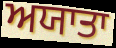
ਅਯਾਤਾ